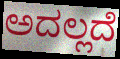
ಅದಲ್ಲದೆ